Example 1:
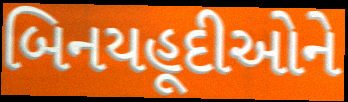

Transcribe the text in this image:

બિનયહૂદીઓને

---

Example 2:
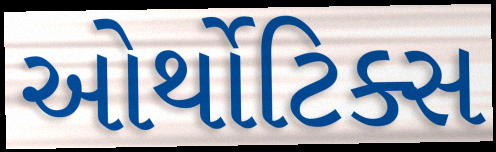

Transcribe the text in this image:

ઓર્થોટિક્સ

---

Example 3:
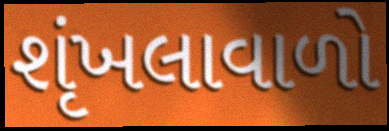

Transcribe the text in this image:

શૃંખલાવાળો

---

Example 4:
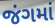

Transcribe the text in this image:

જંગમાં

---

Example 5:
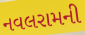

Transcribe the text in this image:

નવલરામની